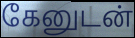
கேனுடன்